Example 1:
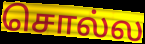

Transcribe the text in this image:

சொல்ல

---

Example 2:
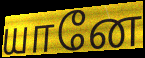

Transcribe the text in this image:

யானே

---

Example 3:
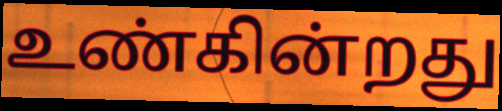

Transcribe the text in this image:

உண்கின்றது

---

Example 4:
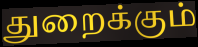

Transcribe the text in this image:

துறைக்கும்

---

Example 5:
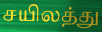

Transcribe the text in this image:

சயிலத்து